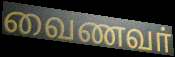
வைணவர்